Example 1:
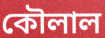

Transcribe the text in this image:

কৌলাল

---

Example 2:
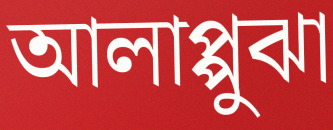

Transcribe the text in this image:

আলাপ্পুঝা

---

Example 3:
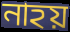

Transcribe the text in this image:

নাহয়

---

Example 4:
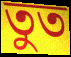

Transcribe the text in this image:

তুত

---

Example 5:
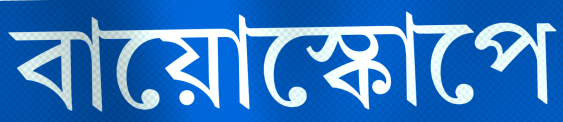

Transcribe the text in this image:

বায়োস্কোপে